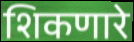
शिकणारे